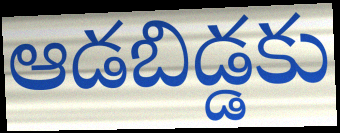
ఆడబిడ్డకు